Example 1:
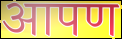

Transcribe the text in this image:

आपण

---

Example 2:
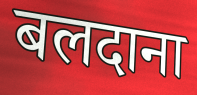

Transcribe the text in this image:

बलदाना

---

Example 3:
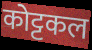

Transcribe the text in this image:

कोट्टकल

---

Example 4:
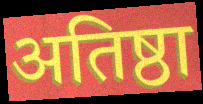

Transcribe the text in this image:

अतिष्ठा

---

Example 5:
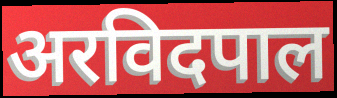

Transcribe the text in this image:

अरविदपाल